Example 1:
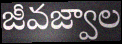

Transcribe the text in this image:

జీవజ్వాల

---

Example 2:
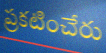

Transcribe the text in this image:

ప్రకటించేరు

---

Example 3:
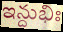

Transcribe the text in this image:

ఇన్దుభిః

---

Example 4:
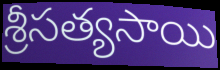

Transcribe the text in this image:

శ్రీసత్యసాయి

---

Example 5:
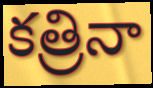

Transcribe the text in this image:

కత్రినా